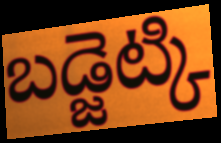
బడ్జెట్కి